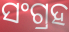
ସଂଗ୍ରହ